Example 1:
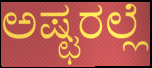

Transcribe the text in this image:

ಅಷ್ಟರಲ್ಲೆ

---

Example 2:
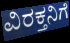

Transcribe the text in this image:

ವಿರಕ್ತನಿಗೆ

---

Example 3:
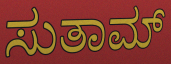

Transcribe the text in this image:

ಸುತಾಮ್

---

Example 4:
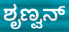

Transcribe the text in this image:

ಶೃಣ್ವನ್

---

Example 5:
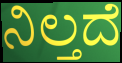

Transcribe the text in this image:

ನಿಲ್ತದೆ